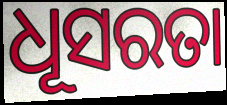
ଧୂସରତା